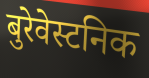
बुरेवेस्टनिक